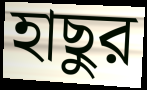
হাছুর